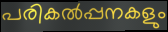
പരികൽപ്പനകളും